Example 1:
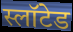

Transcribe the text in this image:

स्लॉटेड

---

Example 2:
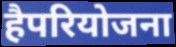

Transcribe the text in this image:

हैपरियोजना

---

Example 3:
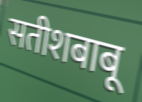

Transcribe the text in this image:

सतीशबाबू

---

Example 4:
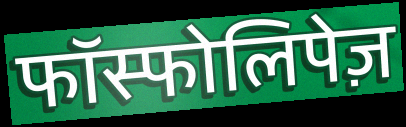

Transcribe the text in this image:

फॉस्फोलिपेज़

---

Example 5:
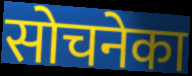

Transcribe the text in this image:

सोचनेका